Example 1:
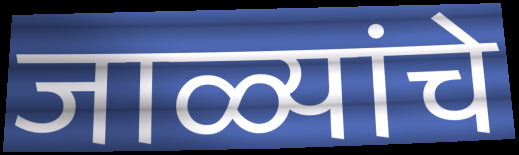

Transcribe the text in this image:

जाळ्यांचे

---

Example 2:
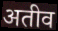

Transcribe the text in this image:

अतीव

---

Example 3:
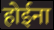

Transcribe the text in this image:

होईना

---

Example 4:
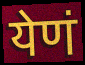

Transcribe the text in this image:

येणं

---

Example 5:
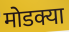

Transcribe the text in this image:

मोडक्या